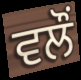
ਵਲੌਂ